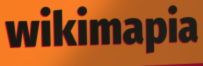
wikimapia